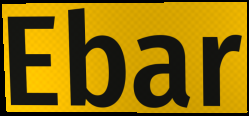
Ebar